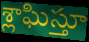
శ్లాఘిస్తూ